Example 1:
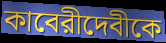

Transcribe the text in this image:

কাবেরীদেবীকে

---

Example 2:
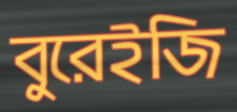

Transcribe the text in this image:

বুরেইজি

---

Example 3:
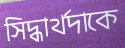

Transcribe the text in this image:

সিদ্ধার্থদাকে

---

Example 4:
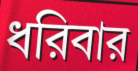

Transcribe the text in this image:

ধরিবার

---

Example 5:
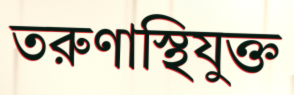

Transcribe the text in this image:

তরুণাস্থিযুক্ত